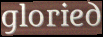
gloried